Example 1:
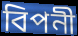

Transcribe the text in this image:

বিপনী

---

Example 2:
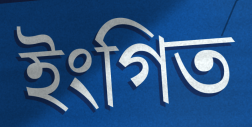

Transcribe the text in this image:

ইংগিত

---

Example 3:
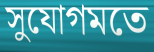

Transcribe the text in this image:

সুযোগমতে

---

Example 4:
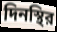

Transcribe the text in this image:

দিনস্থির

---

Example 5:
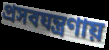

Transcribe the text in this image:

প্রসবযন্ত্রণায়